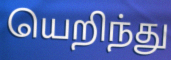
யெறிந்து